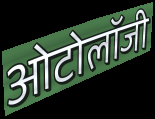
ओटोलॉजी